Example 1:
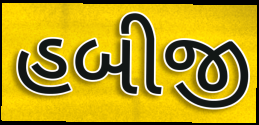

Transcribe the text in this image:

હબીજી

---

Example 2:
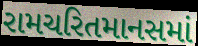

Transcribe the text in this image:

રામચરિતમાનસમાં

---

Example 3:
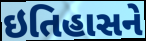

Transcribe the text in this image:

ઇતિહાસને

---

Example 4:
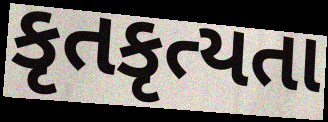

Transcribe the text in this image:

કૃતકૃત્યતા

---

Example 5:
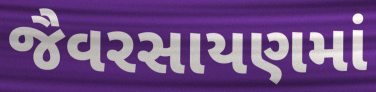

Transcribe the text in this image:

જૈવરસાયણમાં